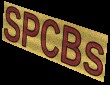
SPCBs